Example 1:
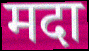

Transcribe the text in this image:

मदा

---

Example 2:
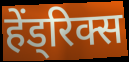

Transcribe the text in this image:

हेंड्रिक्स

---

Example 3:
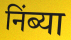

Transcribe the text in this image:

निंब्या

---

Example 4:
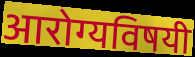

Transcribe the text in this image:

आरोग्यविषयी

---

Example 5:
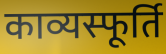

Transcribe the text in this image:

काव्यस्फूर्ति